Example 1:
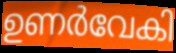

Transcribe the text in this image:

ഉണർവേകി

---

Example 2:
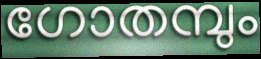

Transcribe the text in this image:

ഗോതമ്പും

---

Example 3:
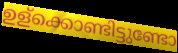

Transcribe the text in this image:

ഉള്ക്കൊണ്ടിട്ടുണ്ടോ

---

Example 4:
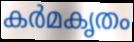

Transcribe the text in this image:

കർമകൃതം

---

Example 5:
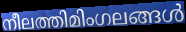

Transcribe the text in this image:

നീലത്തിമിംഗലങ്ങൾ